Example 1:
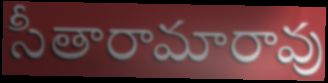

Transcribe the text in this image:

సీతారామారావు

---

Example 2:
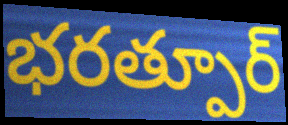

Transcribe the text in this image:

భరత్పూర్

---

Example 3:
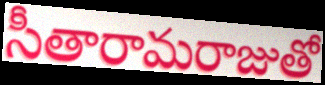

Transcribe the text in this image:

సీతారామరాజుతో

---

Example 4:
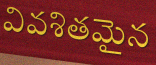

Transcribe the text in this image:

వివశితమైన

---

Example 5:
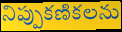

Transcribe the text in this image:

నిప్పుకణికలను